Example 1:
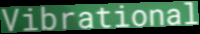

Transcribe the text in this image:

Vibrational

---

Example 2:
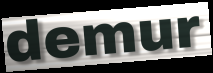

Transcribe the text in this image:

demur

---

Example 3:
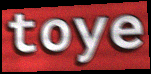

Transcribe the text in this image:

toye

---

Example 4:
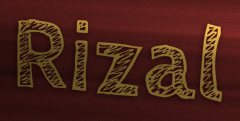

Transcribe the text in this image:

Rizal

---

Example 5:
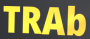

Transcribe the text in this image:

TRAb